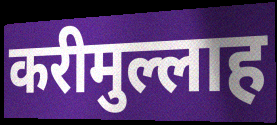
करीमुल्लाह